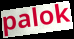
palok